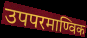
उपपरमाण्विक